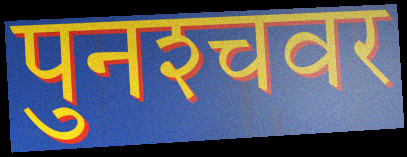
पुनश्चवर